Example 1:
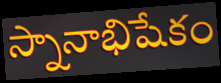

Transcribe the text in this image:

స్నానాభిషేకం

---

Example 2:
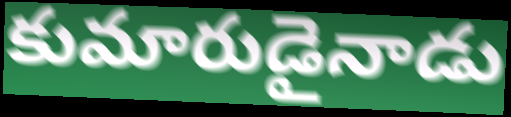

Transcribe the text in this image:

కుమారుడైనాడు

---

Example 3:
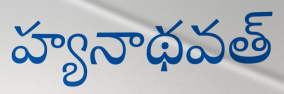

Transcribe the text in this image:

హ్యనాథవత్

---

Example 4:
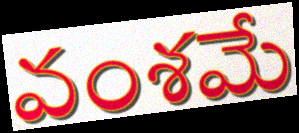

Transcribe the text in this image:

వంశమే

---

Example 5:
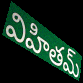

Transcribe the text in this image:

విహితమ్